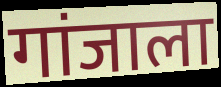
गांजाला